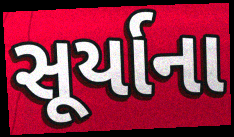
સૂર્યાના